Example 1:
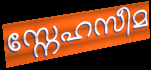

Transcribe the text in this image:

സ്നേഹസീമ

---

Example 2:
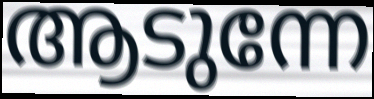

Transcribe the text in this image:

ആടുന്നേ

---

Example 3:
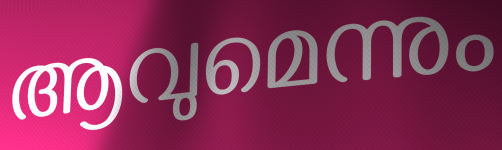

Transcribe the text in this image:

ആവുമെന്നും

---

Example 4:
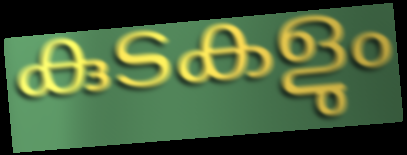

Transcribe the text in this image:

കുടകളും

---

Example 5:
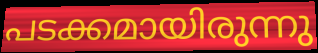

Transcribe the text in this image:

പടക്കമായിരുന്നു